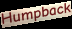
Humpback